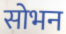
सोभन